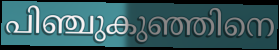
പിഞ്ചുകുഞ്ഞിനെ